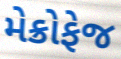
મેક્રોફેજ